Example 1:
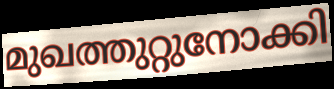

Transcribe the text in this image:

മുഖത്തുറ്റുനോക്കി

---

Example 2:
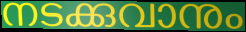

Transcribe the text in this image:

നടക്കുവാനും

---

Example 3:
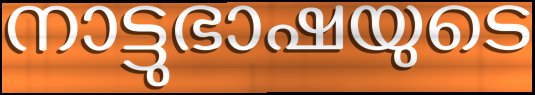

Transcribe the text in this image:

നാട്ടുഭാഷയുടെ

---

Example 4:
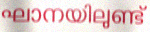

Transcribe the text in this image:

ഘാനയിലുണ്ട്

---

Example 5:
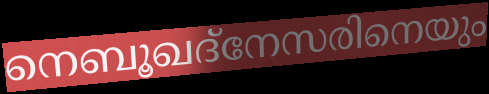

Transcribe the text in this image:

നെബൂഖദ്നേസരിനെയും